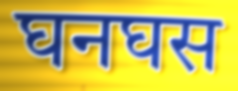
घनघस